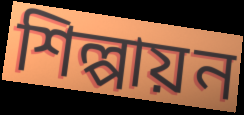
শিল্পায়ন